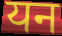
यन